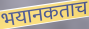
भयानकताच